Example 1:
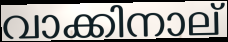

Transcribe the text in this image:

വാക്കിനാല്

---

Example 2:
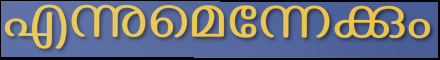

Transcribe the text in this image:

എന്നുമെന്നേക്കും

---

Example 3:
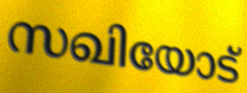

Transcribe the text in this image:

സഖിയോട്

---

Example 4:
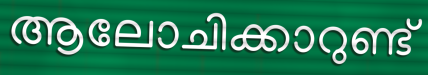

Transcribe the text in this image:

ആലോചിക്കാറുണ്ട്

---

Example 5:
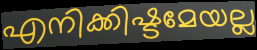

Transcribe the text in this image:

എനിക്കിഷ്ടമേയല്ല